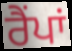
ਰੈਂਪਾਂ